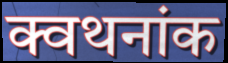
क्वथनांक